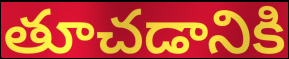
తూచడానికి